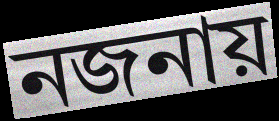
নজনায়